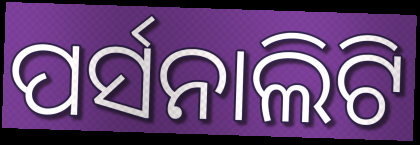
ପର୍ସନାଲିଟି